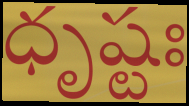
ధృష్టః